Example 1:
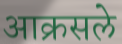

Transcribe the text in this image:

आक्रसले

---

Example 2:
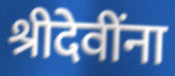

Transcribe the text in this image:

श्रीदेवींना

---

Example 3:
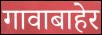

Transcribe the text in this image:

गावाबाहेर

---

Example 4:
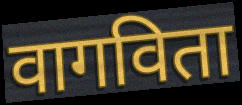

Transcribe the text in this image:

वागविता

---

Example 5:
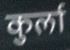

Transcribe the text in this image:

कुर्ला